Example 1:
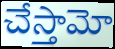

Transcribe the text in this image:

చేస్తామో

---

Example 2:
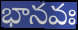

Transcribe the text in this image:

భానవః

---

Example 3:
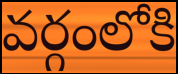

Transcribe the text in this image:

వర్గంలోకి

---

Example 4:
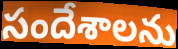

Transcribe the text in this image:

సందేశాలను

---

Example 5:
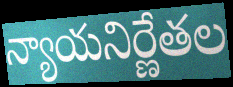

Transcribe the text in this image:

న్యాయనిర్ణేతల